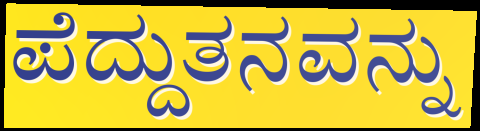
ಪೆದ್ದುತನವನ್ನು